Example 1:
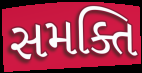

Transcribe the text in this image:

સમક્તિ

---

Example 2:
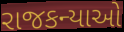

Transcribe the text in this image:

રાજકન્યાઓ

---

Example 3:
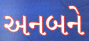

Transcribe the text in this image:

અનબને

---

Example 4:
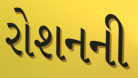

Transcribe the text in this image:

રોશનની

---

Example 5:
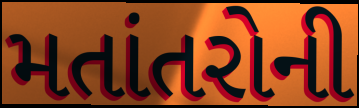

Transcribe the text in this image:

મતાંતરોની